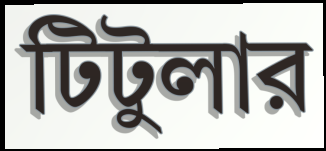
টিটুলার